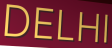
DELHI